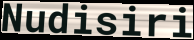
Nudisiri